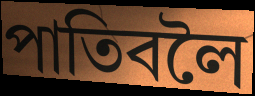
পাতিবলৈ